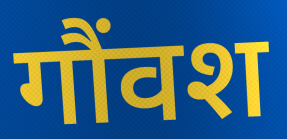
गौंवश